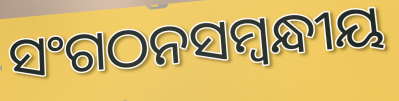
ସଂଗଠନସମ୍ବନ୍ଧୀୟ